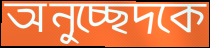
অনুচ্ছেদকে